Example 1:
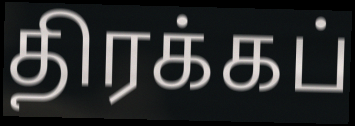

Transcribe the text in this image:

திரக்கப்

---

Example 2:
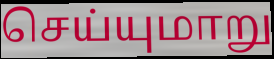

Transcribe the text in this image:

செய்யுமாறு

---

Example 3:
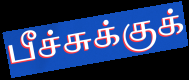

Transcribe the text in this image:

பீச்சுக்குக்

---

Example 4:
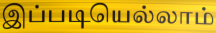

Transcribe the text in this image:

இப்படியெல்லாம்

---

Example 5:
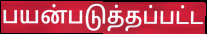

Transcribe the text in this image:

பயன்படுத்தப்பட்ட